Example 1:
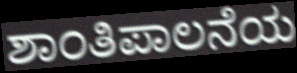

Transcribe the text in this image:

ಶಾಂತಿಪಾಲನೆಯ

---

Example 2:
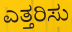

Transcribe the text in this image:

ಎತ್ತರಿಸು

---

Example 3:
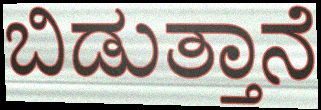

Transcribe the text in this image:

ಬಿಡುತ್ತಾನೆ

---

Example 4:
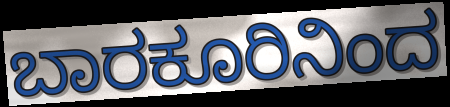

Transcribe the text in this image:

ಬಾರಕೂರಿನಿಂದ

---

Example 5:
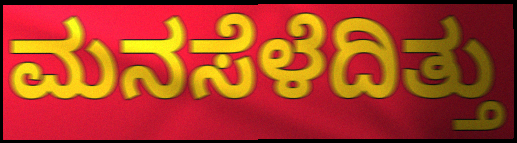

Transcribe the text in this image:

ಮನಸೆಳೆದಿತ್ತು